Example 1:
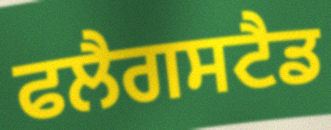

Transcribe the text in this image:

ਫਲੈਗਸਟੈਡ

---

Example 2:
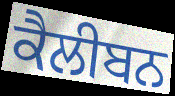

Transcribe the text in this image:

ਕੈਲੀਬਨ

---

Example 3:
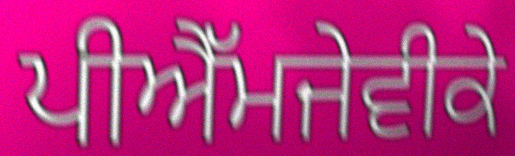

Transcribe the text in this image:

ਪੀਐੱਮਜੇਵੀਕੇ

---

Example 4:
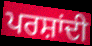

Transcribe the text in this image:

ਪਰਸ਼ਾਂਦੀ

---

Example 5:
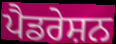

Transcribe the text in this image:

ਪੈਡਰੇਸ਼ਨ